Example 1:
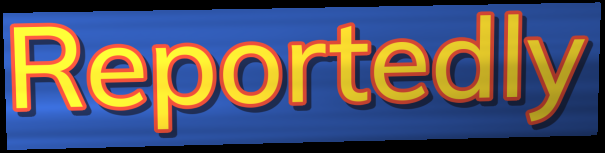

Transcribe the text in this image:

Reportedly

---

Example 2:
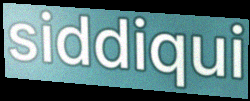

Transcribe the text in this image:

siddiqui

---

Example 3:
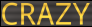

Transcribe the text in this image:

CRAZY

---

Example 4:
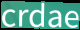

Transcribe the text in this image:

crdae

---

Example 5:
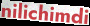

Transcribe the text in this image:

nilichimdi